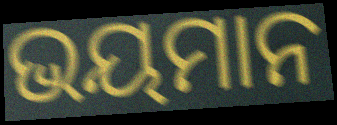
ଭୟମାନ